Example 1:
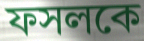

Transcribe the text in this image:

ফসলকে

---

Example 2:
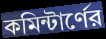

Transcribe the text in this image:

কমিন্টার্ণের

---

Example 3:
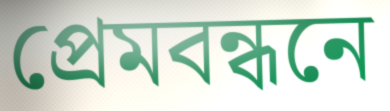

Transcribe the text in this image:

প্রেমবন্ধনে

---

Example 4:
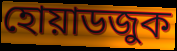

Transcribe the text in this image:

হোয়াডজুক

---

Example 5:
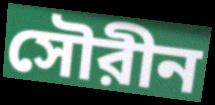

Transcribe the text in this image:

সৌরীন